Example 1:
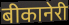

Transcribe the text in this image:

बीकानेरी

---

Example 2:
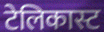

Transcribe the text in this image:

टेलिकास्ट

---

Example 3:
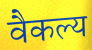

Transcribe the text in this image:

वैकल्य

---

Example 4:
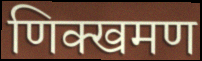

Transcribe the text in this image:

णिक्खमण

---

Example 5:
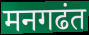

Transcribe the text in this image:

मनगढंत